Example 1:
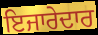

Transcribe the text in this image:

ਇਜਾਰੇਦਾਰ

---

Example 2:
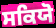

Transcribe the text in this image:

ਸਕਿਯੋ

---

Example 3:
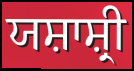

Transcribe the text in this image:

ਯਸ਼ਾਸ਼੍ਰੀ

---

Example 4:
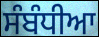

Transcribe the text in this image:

ਸੰਬੰਧੀਆ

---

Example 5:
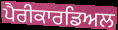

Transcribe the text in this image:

ਪੈਰੀਕਾਰਡਿਅਲ